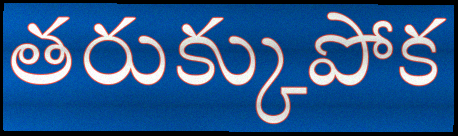
తరుక్కుపోక